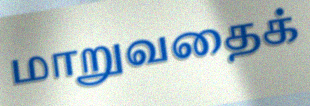
மாறுவதைக்